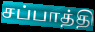
சப்பாத்தி